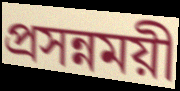
প্রসন্নময়ী